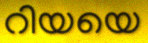
റിയയെ